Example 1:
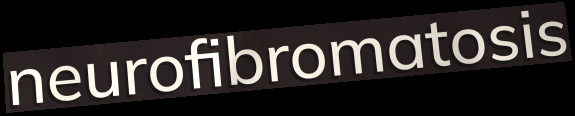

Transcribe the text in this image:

neurofibromatosis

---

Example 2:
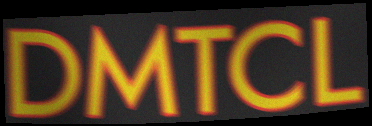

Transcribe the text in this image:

DMTCL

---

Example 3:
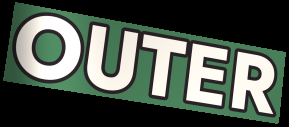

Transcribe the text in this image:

OUTER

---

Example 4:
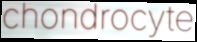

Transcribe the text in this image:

chondrocyte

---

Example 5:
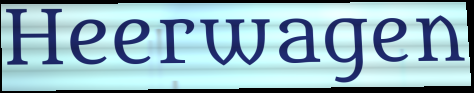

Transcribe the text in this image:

Heerwagen